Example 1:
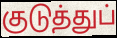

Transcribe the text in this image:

குடுத்துப்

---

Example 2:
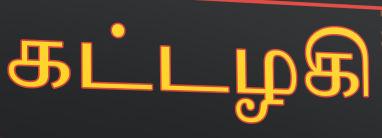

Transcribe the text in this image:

கட்டழகி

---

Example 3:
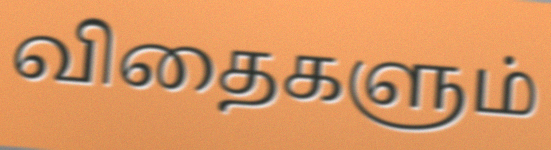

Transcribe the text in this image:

விதைகளும்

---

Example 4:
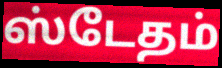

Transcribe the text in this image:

ஸ்டேதம்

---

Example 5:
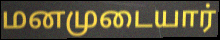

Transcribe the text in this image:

மனமுடையார்